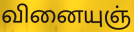
வினையுஞ்